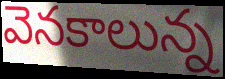
వెనకాలున్న